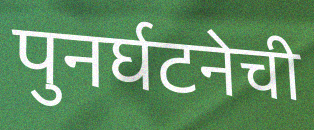
पुनर्घटनेची